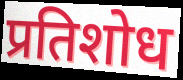
प्रतिशोध